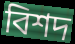
বিশদ